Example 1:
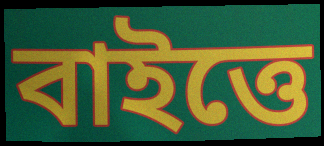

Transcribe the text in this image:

বাইত্তে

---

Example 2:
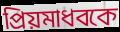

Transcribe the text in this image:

প্রিয়মাধবকে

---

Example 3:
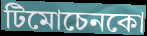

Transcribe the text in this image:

টিমোচেনকো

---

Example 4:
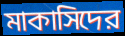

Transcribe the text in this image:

মাকাসিদের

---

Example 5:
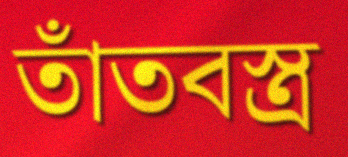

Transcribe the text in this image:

তাঁতবস্ত্র